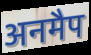
अनमैप